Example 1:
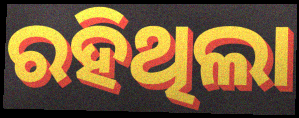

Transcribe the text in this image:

ରହିଥିଲା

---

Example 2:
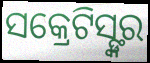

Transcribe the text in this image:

ସକ୍ରେଟିସ୍ଙ୍କର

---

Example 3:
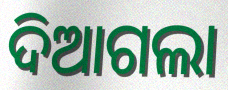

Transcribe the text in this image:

ଦିଆଗଲା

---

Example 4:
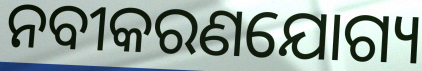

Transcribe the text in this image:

ନବୀକରଣଯୋଗ୍ୟ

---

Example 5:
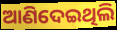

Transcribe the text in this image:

ଆଣିଦେଇଥିଲି